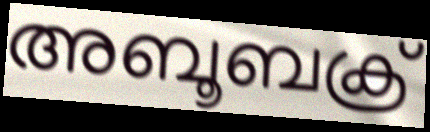
അബൂബക്ര്